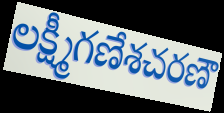
లక్ష్మీగణేశచరణౌ